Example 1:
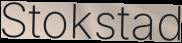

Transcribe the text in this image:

Stokstad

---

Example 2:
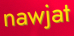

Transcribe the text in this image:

nawjat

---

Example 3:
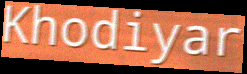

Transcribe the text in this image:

Khodiyar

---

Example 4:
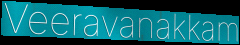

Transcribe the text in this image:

Veeravanakkam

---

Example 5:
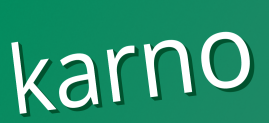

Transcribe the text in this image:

karno